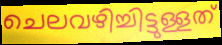
ചെലവഴിച്ചിട്ടുള്ളത്